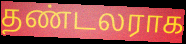
தண்டலராக